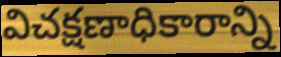
విచక్షణాధికారాన్ని